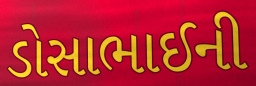
ડોસાભાઈની